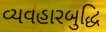
વ્યવહારબુદ્ધિ